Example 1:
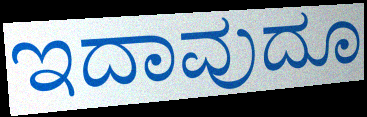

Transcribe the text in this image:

ಇದಾವುದೂ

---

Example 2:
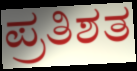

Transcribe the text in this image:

ಪ್ರತಿಶತ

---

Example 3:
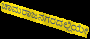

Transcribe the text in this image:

ಚಾಮರಾಜನಗರದಲ್ಲಿಯೇ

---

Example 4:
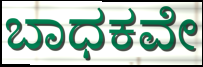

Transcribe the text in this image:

ಬಾಧಕವೇ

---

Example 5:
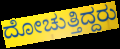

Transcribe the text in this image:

ದೋಚುತ್ತಿದ್ದರು